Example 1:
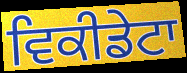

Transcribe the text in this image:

ਵਿਕੀਡੇਟਾ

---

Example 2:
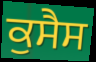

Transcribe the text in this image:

ਕੁਸੈਸ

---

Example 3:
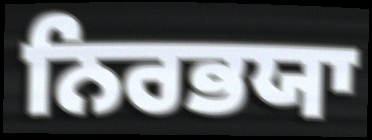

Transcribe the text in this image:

ਨਿਰਭਯਾ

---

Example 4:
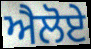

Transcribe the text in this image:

ਐਲੋਏ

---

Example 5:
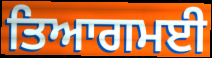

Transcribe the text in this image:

ਤਿਆਗਮਈ